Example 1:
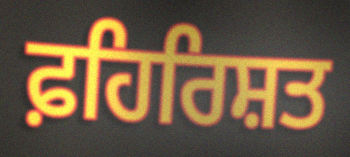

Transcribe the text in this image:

ਫ਼ਹਿਰਿਸ਼ਤ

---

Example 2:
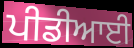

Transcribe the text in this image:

ਪੀਡੀਆਈ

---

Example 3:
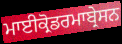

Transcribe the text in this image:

ਮਾਈਕ੍ਰੋਡਰਮਾਬ੍ਰੇਸਨ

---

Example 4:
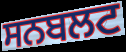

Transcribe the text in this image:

ਸਨਬਲਟ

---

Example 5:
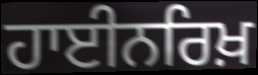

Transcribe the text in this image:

ਹਾਈਨਰਿਖ਼